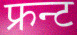
फ्रन्ट